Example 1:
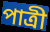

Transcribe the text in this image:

পাত্রী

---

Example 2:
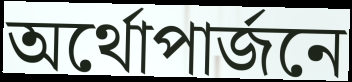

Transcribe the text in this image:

অর্থোপার্জনে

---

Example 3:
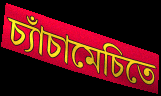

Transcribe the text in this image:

চ্যাঁচামেচিতে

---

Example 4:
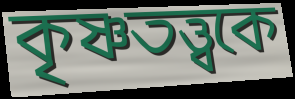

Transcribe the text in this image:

কৃষ্ণতত্ত্বকে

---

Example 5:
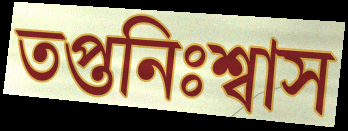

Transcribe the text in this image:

তপ্তনিঃশ্বাস